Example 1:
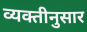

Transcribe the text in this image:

व्यक्तीनुसार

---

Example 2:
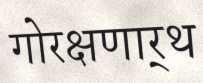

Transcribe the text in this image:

गोरक्षणार्थ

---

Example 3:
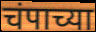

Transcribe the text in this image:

चंपाच्या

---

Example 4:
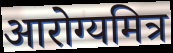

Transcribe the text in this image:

आरोग्यमित्र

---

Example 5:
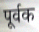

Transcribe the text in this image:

पूर्वक